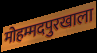
मोहम्मदपुरखाला